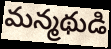
మన్మథుడి